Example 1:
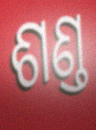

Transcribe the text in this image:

ଶଣ୍ଡ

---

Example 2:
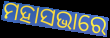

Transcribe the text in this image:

ମହାସଭାରେ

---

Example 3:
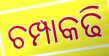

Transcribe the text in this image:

ଚମ୍ପାକଢି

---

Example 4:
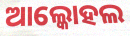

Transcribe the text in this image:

ଆଲ୍କୋହଲ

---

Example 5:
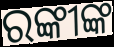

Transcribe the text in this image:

ରଙ୍କୀଙ୍କ